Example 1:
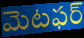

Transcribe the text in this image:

మెటఫర్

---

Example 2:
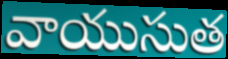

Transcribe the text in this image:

వాయుసుత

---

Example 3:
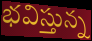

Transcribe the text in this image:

భవిస్తున్న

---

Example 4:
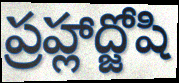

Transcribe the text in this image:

ప్రహ్లాద్జోషి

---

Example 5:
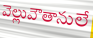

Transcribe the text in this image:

వెల్లువౌతానులే